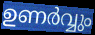
ഉണർവ്വും